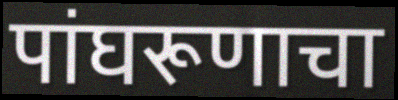
पांघरूणाचा